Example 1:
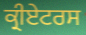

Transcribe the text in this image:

ਕ੍ਰੀਏਟਰਸ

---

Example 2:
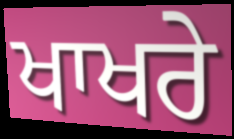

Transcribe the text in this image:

ਖਾਖਰੇ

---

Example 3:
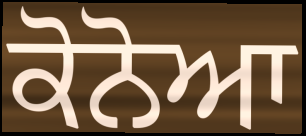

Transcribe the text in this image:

ਕੋਨੋਆ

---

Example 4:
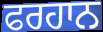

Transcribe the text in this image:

ਫਰਹਾਨ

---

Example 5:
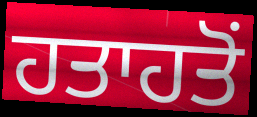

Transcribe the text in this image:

ਹਤਾਹਤੋਂ